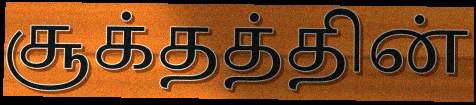
சூக்தத்தின்